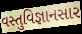
વસ્તુવિજ્ઞાનસાર